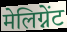
मेलिग्नेंट